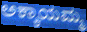
ಅಕ್ಕಾಯಮ್ಮ